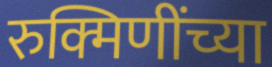
रुक्मिणींच्या